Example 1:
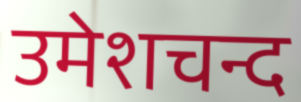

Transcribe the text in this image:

उमेशचन्द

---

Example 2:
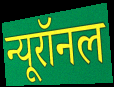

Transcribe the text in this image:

न्यूरॉनल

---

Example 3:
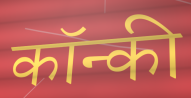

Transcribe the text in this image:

कॉन्की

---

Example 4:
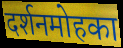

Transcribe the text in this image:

दर्शनमोहका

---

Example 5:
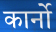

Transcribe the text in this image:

कार्नो